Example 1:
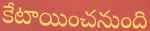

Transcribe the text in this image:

కేటాయించనుంది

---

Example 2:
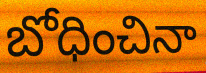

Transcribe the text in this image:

బోధించినా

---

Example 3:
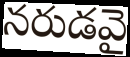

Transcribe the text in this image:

నరుడవై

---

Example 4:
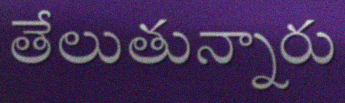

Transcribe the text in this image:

తేలుతున్నారు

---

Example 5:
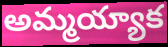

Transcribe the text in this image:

అమ్మయ్యాక